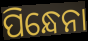
ପିନ୍ଧେନା